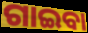
ଗାଇବା